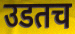
उडतच